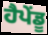
ਹੈਪੇਂਡੂ